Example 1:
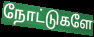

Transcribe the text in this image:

நோட்டுகளே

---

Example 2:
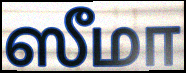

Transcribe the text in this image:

ஸீமா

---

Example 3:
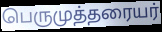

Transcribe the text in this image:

பெருமுத்தரையர்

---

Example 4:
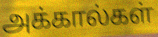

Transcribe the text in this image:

அக்கால்கள்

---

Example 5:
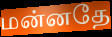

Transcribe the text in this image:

மன்னதே